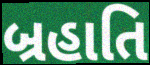
બ્રહાતિ